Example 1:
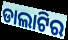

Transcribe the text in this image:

ଡାଲାଟିର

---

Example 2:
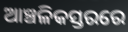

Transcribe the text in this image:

ଆଞ୍ଚଳିକସ୍ତରରେ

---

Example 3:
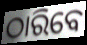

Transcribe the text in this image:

ଠାରିବେ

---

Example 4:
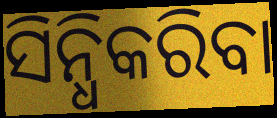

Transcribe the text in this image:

ସିନ୍ଧିକରିବା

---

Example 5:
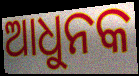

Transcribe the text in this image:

ଆଧୁନକ